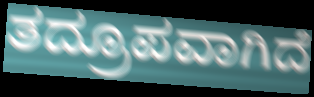
ತದ್ರೂಪವಾಗಿದೆ